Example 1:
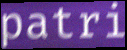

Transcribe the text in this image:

patri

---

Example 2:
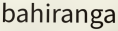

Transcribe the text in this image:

bahiranga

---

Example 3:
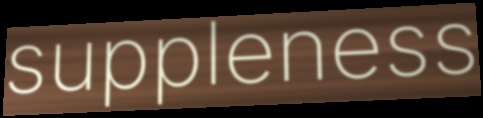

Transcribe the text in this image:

suppleness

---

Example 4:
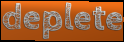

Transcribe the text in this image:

deplete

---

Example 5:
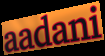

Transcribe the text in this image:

aadani